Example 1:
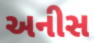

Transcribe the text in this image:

અનીસ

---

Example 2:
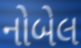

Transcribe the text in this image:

નોબેલ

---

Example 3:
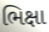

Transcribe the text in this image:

ભિક્ષા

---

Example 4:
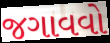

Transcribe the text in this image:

જગાવવો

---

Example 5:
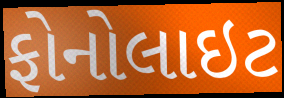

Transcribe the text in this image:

ફોનોલાઇટ